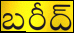
బరీద్